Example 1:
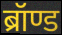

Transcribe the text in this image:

ब्रॉण्ड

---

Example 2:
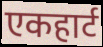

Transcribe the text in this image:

एकहार्ट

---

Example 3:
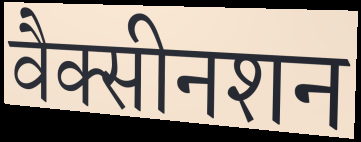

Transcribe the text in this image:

वैक्सीनशन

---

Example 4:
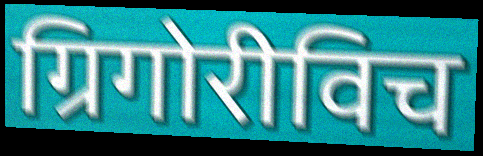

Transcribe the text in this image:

ग्रिगोरीविच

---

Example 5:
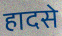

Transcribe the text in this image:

हादसे